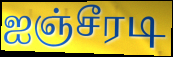
ஐஞ்சீரடி